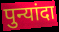
पुन्यांदा